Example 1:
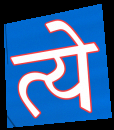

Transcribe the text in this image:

त्ये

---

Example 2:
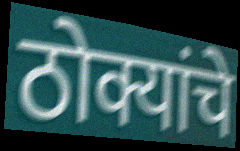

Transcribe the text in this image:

ठोक्यांचे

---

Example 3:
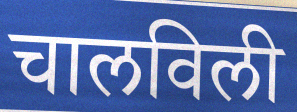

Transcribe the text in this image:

चालविली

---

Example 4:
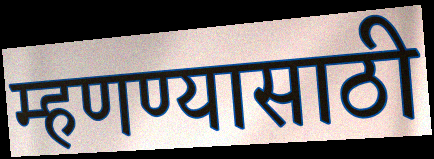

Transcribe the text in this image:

म्हणण्यासाठी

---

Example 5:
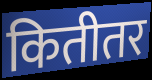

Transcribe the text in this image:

कितीतर